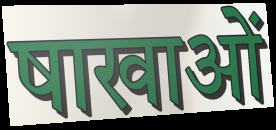
षाखाओं